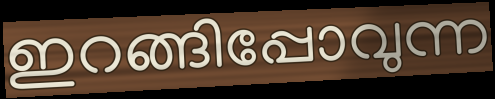
ഇറങ്ങിപ്പോവുന്ന